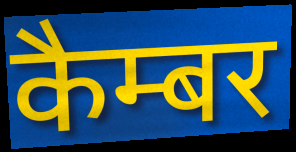
कैम्बर